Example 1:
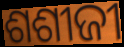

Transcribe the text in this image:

ଶଶୀଜୀ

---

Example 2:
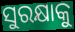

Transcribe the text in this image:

ସୁରକ୍ଷାକୁ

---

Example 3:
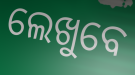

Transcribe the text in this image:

ଲେଖୁବେ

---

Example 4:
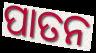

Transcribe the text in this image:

ପାତନ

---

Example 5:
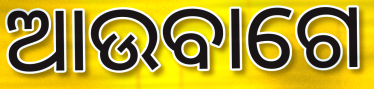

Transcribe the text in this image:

ଆଉବାଗେ